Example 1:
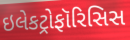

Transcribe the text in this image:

ઇલેકટ્રોફૉરિસિસ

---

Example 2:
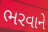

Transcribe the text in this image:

ભરવાને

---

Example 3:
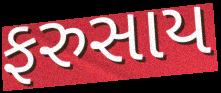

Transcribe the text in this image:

ફરુસાય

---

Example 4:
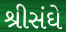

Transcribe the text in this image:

શ્રીસંઘે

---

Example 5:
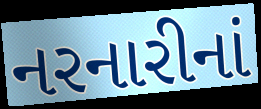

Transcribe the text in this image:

નરનારીનાં